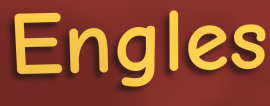
Engles